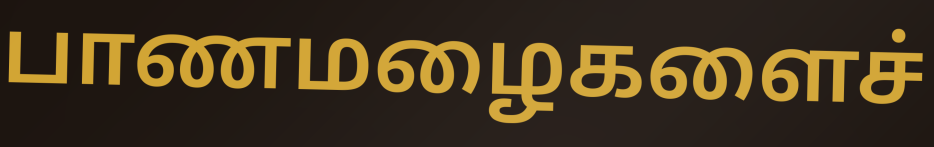
பாணமழைகளைச்